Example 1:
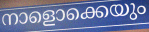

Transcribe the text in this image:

നാളൊക്കെയും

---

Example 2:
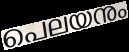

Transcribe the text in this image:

പെലയനും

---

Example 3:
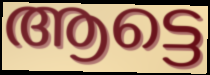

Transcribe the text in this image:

ആട്ടെ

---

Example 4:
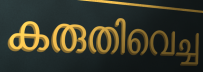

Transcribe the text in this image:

കരുതിവെച്ച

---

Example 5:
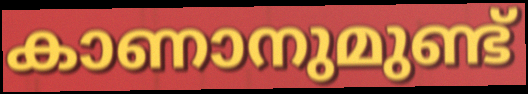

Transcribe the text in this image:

കാണാനുമുണ്ട്